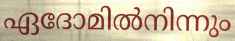
ഏദോമിൽനിന്നും